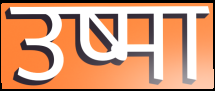
उष्मा